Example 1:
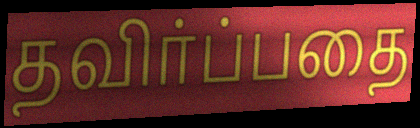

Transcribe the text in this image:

தவிர்ப்பதை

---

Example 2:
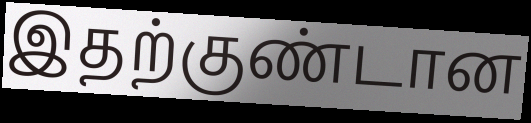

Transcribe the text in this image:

இதற்குண்டான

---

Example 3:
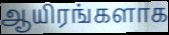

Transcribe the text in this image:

ஆயிரங்களாக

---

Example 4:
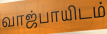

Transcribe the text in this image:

வாஜ்பாயிடம்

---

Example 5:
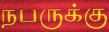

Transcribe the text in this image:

நபருக்கு